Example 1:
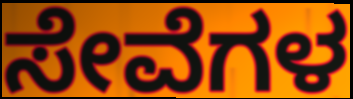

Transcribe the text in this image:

ಸೇವೆಗಳ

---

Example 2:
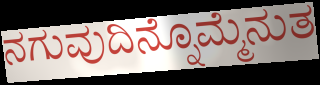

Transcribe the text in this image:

ನಗುವುದಿನ್ನೊಮ್ಮೆನುತ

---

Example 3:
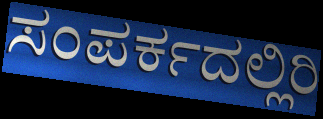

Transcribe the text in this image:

ಸಂಪರ್ಕದಲ್ಲಿರಿ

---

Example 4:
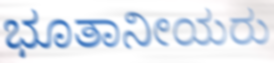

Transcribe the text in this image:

ಭೂತಾನೀಯರು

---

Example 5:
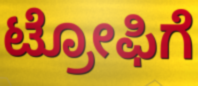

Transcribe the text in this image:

ಟ್ರೋಫಿಗೆ